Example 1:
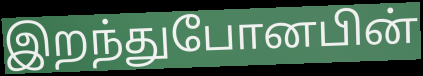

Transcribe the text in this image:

இறந்துபோனபின்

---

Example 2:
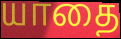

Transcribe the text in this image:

யாதை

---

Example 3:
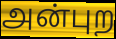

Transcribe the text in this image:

அன்புற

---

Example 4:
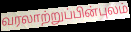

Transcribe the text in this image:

வரலாற்றுப்பின்புலம்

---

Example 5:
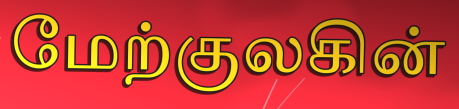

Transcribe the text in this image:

மேற்குலகின்